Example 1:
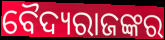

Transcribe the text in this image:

ବୈଦ୍ୟରାଜଙ୍କର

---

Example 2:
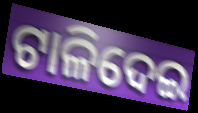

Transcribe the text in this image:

ଟାଳିଦେଇ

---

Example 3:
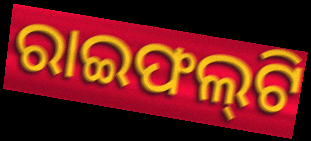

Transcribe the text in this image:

ରାଇଫଲ୍‍ଟି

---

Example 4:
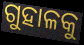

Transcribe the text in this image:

ଗୁହାଳକୁ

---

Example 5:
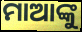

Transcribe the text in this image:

ମାଆଙ୍କୁ